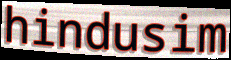
hindusim